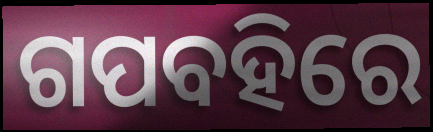
ଗପବହିରେ